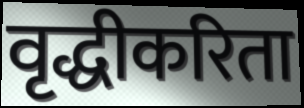
वृद्धीकरिता